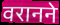
वरानने